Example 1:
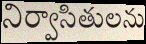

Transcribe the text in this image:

నిర్వాసితులను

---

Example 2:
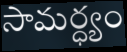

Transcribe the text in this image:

సామర్ధ్యం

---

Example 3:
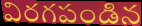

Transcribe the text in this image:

విరగపండిన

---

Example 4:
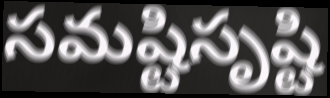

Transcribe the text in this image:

సమష్టిసృష్టి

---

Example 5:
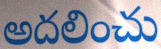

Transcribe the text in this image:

అదలించు